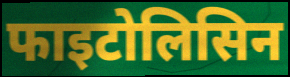
फाइटोलिसिन